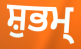
ਸ਼ੁਭਮ੍